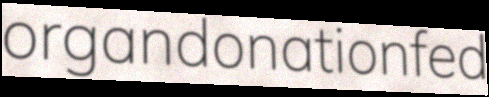
organdonationfed